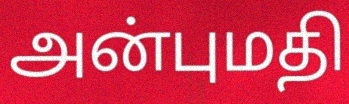
அன்புமதி